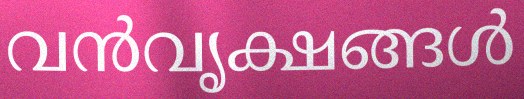
വൻവൃക്ഷങ്ങൾ